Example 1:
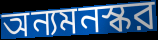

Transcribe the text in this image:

অন্যমনস্কর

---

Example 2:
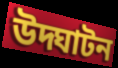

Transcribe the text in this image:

উদ্ঘাটন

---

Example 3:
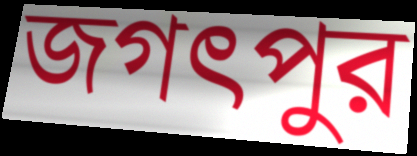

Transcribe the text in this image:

জগৎপুর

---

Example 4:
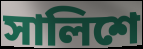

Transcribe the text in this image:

সালিশে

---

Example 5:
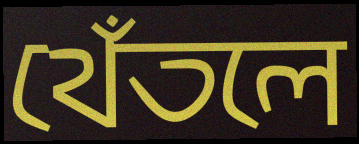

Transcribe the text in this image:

থেঁতলে